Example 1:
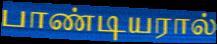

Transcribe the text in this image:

பாண்டியரால்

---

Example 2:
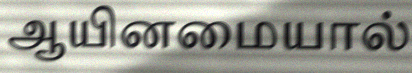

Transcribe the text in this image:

ஆயினமையால்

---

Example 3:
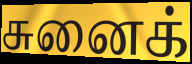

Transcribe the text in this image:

சுனைக்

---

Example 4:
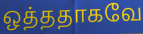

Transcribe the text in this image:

ஒத்ததாகவே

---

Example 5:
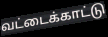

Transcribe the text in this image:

வட்டைக்காட்டு